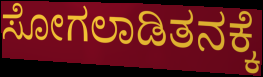
ಸೋಗಲಾಡಿತನಕ್ಕೆ